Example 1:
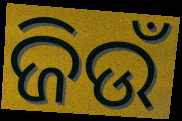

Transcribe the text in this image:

ଜିଉଁ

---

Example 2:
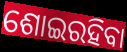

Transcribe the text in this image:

ଶୋଇରହିବା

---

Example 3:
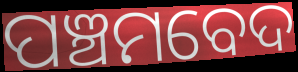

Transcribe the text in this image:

ପଞ୍ଚମବେଦ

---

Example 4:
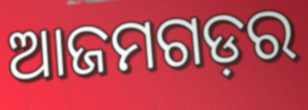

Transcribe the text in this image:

ଆଜମଗଡ଼ର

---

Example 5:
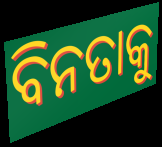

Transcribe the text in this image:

ବିନତାକୁ